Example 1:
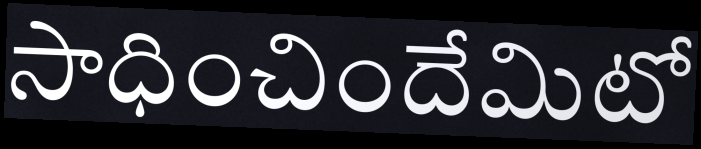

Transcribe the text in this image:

సాధించిందేమిటో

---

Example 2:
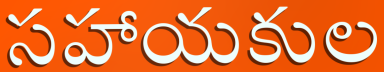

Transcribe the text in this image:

సహాయకుల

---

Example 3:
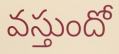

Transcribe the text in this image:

వస్తుందో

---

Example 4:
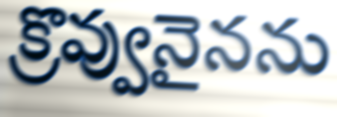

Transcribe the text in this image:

క్రొవ్వునైనను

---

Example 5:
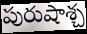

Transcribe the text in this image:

పురుషాశ్చ